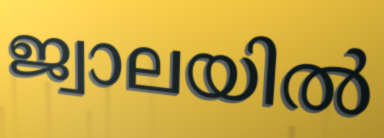
ജ്വാലയിൽ